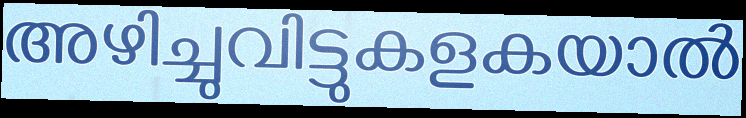
അഴിച്ചുവിട്ടുകളകയാൽ